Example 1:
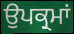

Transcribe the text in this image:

ਉਪਕ੍ਰਮਾਂ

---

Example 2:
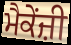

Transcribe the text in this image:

ਮੈਕੇਂਜ਼ੀ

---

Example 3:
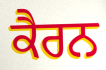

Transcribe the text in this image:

ਕੈਰਨ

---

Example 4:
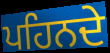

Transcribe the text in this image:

ਪਹਿਨਦੇ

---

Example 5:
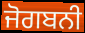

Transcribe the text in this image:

ਜੋਗਬਨੀ